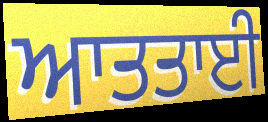
ਆਤਤਾਈ